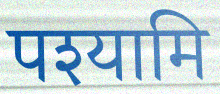
पश्यामि